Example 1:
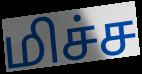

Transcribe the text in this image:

மிச்ச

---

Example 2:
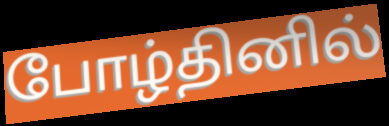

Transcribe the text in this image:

போழ்தினில்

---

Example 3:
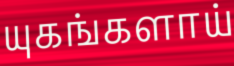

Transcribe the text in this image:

யுகங்களாய்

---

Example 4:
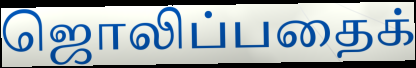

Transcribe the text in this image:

ஜொலிப்பதைக்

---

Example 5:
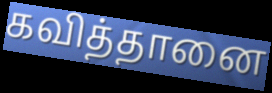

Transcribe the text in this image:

கவித்தானை